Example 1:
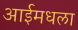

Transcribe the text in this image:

आईमधला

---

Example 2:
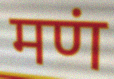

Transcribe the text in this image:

मणं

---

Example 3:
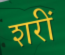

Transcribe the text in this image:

शरीं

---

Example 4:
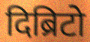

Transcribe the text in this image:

दिब्रिटो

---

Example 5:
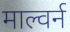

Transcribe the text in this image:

माल्वर्न